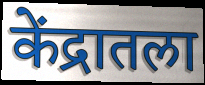
केंद्रातला